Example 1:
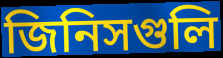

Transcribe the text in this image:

জিনিসগুলি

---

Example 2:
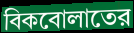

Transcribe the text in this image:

বিকবোলাতের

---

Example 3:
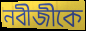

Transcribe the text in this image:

নবীজীকে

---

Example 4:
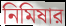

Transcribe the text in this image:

নিমিষার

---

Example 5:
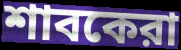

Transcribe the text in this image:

শাবকেরা